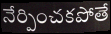
నేర్పించకపోతే